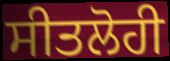
ਸੀਤਲੋਹੀ